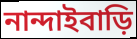
নান্দাইবাড়ি